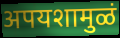
अपयशामुळं